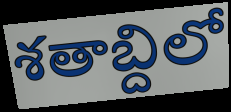
శతాబ్దిలో